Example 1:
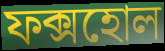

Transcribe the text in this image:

ফক্সহোল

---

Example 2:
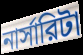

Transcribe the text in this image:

নার্সারিটা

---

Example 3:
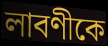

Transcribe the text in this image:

লাবণীকে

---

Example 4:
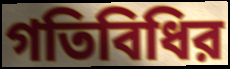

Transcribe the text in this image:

গতিবিধির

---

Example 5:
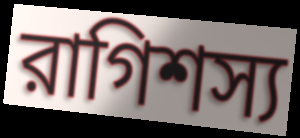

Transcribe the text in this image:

রাগিশস্য